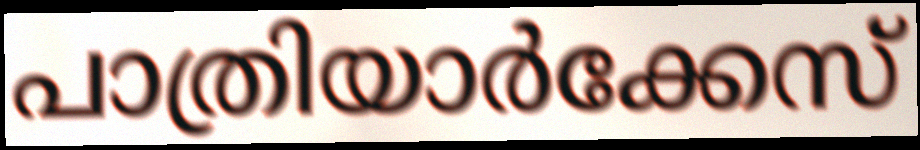
പാത്രിയാർക്കേസ്